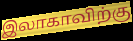
இலாகாவிற்கு